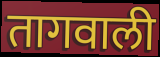
तागवाली